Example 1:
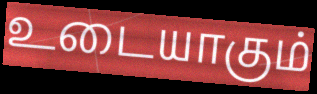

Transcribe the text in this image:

உடையாகும்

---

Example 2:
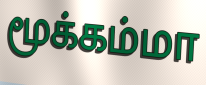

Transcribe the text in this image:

மூக்கம்மா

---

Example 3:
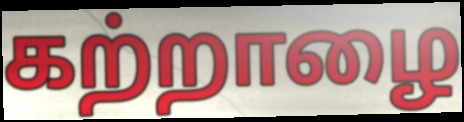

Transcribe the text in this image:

கற்றாழை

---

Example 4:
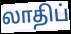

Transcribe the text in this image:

லாதிப்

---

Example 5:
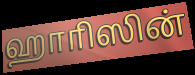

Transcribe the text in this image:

ஹாரிஸின்